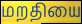
மறதியை